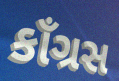
કાઁગ્રસ